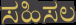
ಸಹಿಸಲ